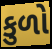
કુળો